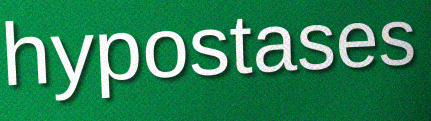
hypostases